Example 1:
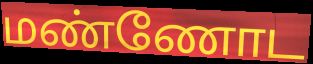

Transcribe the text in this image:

மண்ணோட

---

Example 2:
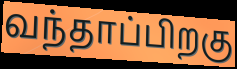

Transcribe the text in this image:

வந்தாப்பிறகு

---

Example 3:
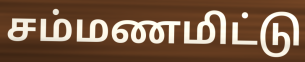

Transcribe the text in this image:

சம்மணமிட்டு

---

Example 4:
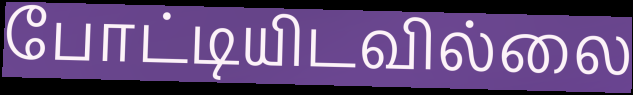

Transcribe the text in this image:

போட்டியிடவில்லை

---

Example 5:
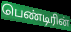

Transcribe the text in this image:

பெண்டிரின்